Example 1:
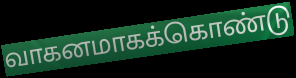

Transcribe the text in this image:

வாகனமாகக்கொண்டு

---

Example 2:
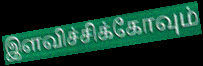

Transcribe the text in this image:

இளவிச்சிக்கோவும்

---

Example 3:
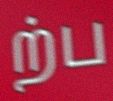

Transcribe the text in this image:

ற்ப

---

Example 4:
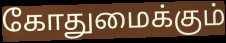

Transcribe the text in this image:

கோதுமைக்கும்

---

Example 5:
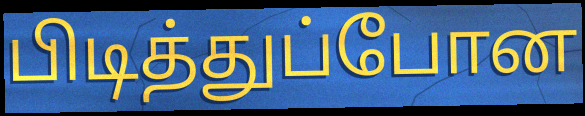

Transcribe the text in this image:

பிடித்துப்போன